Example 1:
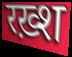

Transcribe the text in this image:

रख़्श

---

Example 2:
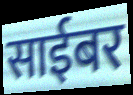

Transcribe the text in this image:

साईबर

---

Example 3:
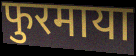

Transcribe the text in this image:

फुरमाया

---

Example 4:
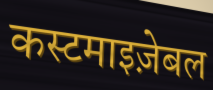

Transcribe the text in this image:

कस्टमाइज़ेबल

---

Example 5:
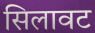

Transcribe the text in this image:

सिलावट